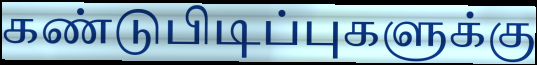
கண்டுபிடிப்புகளுக்கு